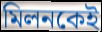
মিলনকেই